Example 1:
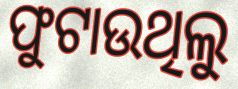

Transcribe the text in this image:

ଫୁଟାଉଥିଲୁ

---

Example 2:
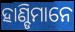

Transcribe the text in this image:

ହାଣ୍ଡିମାନେ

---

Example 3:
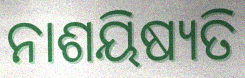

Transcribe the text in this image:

ନାଶୟିଷ୍ୟତି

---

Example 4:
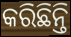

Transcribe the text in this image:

କରିଛିନ୍ତି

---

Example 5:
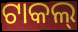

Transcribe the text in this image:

ଟାକଲ୍